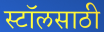
स्टॉलसाठी